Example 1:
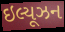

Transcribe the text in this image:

ઇલ્યૂઝન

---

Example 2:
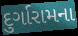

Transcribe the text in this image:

દુર્ગારામના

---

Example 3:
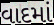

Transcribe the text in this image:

વાદમાં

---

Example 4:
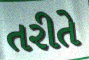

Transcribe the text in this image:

તરીતે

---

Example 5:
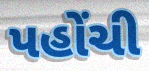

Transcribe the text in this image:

પહોંચી